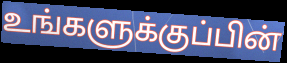
உங்களுக்குப்பின்